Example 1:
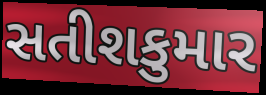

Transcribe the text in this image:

સતીશકુમાર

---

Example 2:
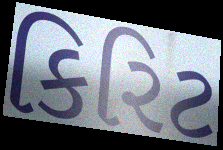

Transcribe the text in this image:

કિરિટ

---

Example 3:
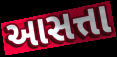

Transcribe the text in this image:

આસત્તા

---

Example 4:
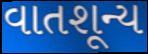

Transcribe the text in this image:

વાતશૂન્ય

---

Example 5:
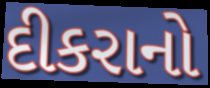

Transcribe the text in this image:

દીકરાનો